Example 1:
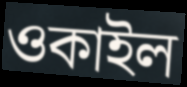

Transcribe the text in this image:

ওকাইল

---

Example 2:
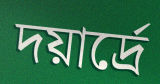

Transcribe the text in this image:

দয়ার্দ্রে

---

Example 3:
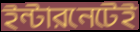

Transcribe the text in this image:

ইন্টারনেটেই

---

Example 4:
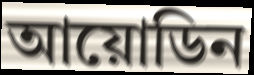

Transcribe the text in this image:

আয়োডিন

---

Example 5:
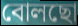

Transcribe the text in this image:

বোলছো